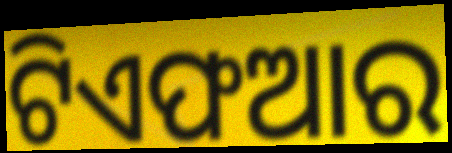
ଟିଏଫଆର